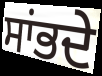
ਸਾਂਭਦੇ